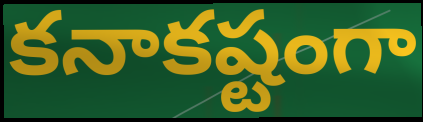
కనాకష్టంగా